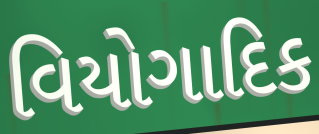
વિયોગાદિક